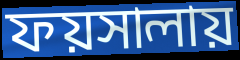
ফয়সালায়